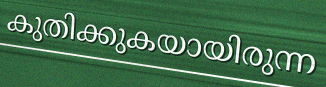
കുതിക്കുകയായിരുന്ന